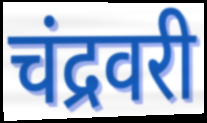
चंद्रवरी